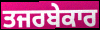
ਤਜਰਬੇਕਾਰ